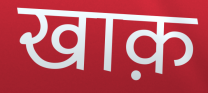
खाक़